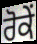
ਰੋਕੇਂ